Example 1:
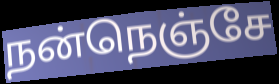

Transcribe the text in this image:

நன்நெஞ்சே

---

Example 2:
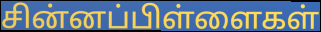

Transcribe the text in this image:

சின்னப்பிள்ளைகள்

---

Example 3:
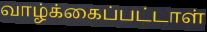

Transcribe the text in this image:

வாழ்க்கைப்பட்டாள்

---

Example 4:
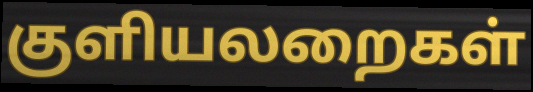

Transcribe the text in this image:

குளியலறைகள்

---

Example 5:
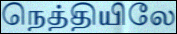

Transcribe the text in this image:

நெத்தியிலே